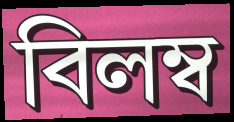
বিলম্ব